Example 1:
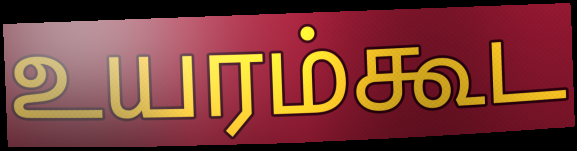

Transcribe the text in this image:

உயரம்கூட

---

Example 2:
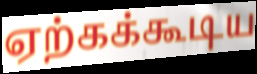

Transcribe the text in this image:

ஏற்கக்கூடிய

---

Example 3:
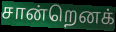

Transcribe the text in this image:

சான்றெனக்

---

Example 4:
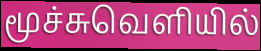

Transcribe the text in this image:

மூச்சுவெளியில்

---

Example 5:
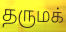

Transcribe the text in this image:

தருமக்